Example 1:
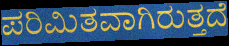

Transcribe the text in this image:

ಪರಿಮಿತವಾಗಿರುತ್ತದೆ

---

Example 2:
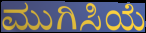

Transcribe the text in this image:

ಮುಗಿಸಿಯೆ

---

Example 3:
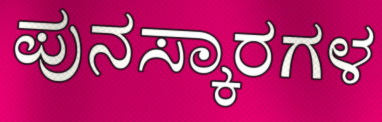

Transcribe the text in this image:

ಪುನಸ್ಕಾರಗಳ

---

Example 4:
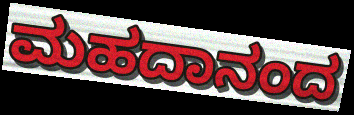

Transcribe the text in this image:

ಮಹದಾನಂದ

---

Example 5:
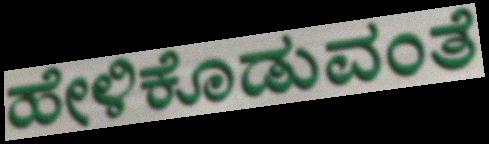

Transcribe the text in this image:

ಹೇಳಿಕೊಡುವಂತೆ